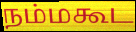
நம்மகூட